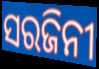
ସରଜିନୀ